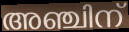
അഞ്ചിന്